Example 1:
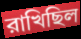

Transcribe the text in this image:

রাখিছিল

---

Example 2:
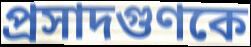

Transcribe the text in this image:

প্রসাদগুণকে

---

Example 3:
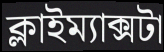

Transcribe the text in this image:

ক্লাইম্যাক্সটা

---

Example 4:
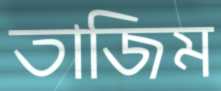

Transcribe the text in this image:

তাজিম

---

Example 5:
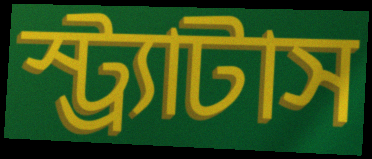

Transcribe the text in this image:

স্ট্র্যাটাস